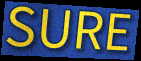
SURE